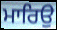
ਮਾਰਿਉ